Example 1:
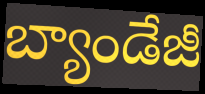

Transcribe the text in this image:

బ్యాండేజీ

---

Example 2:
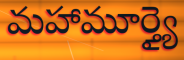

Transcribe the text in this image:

మహామూర్త్యై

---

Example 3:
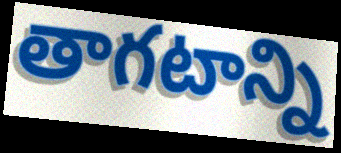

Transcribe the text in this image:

తాగటాన్ని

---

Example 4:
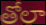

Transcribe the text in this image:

తోలా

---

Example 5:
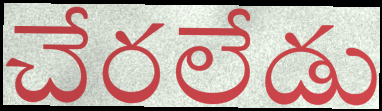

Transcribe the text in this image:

చేరలేడు